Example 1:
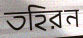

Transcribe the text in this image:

তহিরন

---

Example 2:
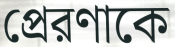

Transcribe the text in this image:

প্রেরণাকে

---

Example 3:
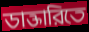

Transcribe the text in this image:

ডাক্তারিতে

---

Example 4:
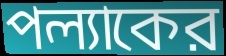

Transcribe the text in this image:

পল্যাকের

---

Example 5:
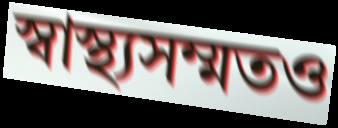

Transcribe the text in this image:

স্বাস্থ্যসম্মতও